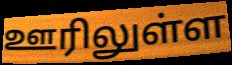
ஊரிலுள்ள